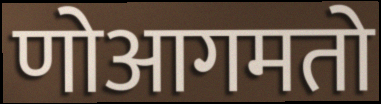
णोआगमतो